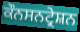
ਕੌਨਸਨਟ੍ਰੇਸ਼ਨ